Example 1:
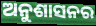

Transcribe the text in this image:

ଅନୁଶାସନର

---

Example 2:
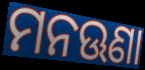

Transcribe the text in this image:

ମନଊଣା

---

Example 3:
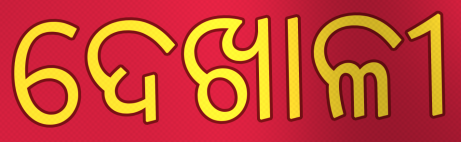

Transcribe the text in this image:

ଦେଖାଳୀ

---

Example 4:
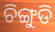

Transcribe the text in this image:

ଚିଙ୍ଗୁଡି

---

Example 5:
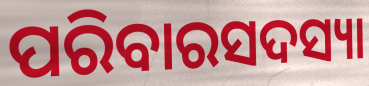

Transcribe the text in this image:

ପରିବାରସଦସ୍ୟା